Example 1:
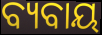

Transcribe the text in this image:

ବ୍ୟବାୟ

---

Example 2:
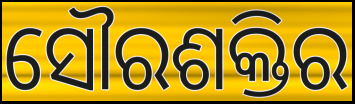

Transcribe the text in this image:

ସୌରଶକ୍ତିର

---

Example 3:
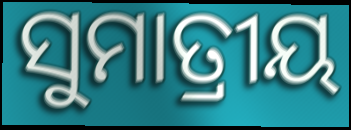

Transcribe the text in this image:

ସୁମାତ୍ରୀୟ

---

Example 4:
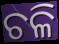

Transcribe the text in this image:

ଚଳି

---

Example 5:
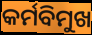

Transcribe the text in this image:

କର୍ମବିମୁଖ